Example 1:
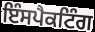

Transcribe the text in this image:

ਇੰਸਪੈਕਟਿੰਗ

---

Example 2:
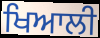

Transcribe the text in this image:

ਖਿਆਲੀ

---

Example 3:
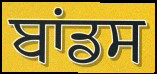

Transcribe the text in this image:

ਬਾਂਡਸ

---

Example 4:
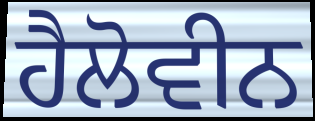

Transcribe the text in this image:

ਹੈਲੋਵੀਨ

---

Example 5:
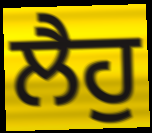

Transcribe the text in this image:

ਲੈਹੁ